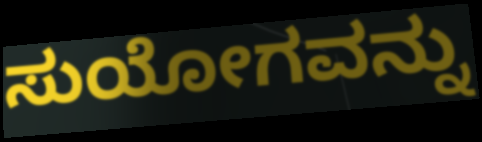
ಸುಯೋಗವನ್ನು